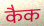
कैक